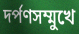
দর্পণসম্মুখে